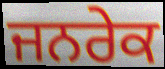
ਜਨਰੇਕ